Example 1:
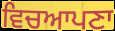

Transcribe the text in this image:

ਵਿਚਆਪਣਾ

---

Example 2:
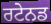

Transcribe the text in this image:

ਰਟੇਨਡ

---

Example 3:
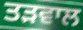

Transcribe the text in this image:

ਤੜਵਾਲ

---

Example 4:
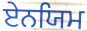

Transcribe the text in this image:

ਏਨਯਿਮ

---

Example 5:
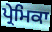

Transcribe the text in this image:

ਪ੍ਰੇਮਿਕਾ